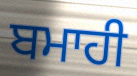
ਬਮਾਹੀ